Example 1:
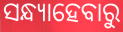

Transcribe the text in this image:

ସନ୍ଧ୍ୟାହେବାରୁ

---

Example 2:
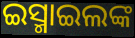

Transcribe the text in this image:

ଇସ୍ମାଇଲଙ୍କ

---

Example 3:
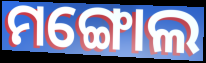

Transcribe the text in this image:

ମଙ୍ଗୋଲ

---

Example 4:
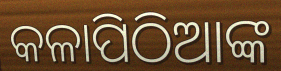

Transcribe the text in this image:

କଳାପିଠିଆଙ୍କ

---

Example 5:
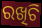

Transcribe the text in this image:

ରଖିଚି